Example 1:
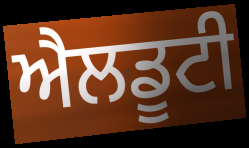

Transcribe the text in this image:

ਐਲਡੂਟੀ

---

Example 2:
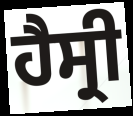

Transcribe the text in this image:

ਹੈਸ੍ਰੀ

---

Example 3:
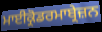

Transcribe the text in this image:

ਮਾਈਕ੍ਰੋਡਰਮਾਬ੍ਰੇਜ਼ਨ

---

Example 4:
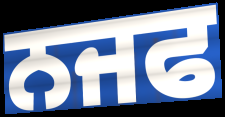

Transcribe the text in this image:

ਨਜਫ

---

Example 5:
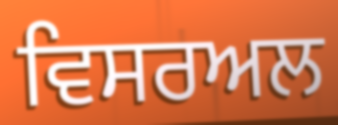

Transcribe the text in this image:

ਵਿਸਰਅਲ